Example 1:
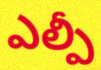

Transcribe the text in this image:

ఎల్పీ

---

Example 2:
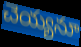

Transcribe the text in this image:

చెయ్యనూ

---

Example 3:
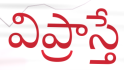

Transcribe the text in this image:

విప్రాస్తే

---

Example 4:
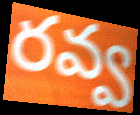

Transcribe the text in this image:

రవ్వ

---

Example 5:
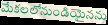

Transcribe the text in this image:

మేకలలోనుండియైనను